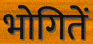
भोगितें